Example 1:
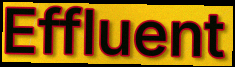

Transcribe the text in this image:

Effluent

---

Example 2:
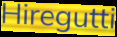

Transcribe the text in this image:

Hiregutti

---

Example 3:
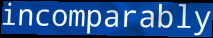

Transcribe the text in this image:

incomparably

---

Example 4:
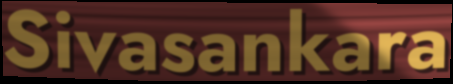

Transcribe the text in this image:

Sivasankara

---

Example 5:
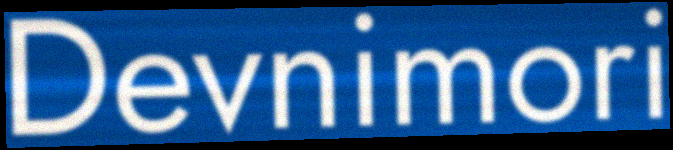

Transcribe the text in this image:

Devnimori